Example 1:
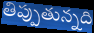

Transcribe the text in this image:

తిప్పుతున్నది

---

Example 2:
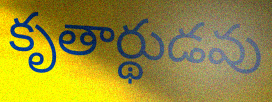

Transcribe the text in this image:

కృతార్థుడవు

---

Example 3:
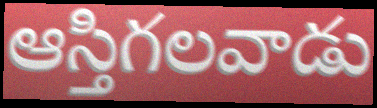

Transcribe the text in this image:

ఆస్తిగలవాడు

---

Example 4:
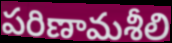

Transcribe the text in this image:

పరిణామశీలి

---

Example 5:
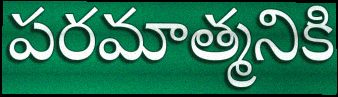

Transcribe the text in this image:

పరమాత్మనికి